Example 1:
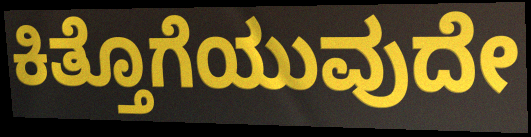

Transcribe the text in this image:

ಕಿತ್ತೊಗೆಯುವುದೇ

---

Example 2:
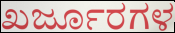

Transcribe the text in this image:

ಖರ್ಜೂರಗಳ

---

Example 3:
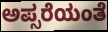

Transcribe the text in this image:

ಅಪ್ಸರೆಯಂತೆ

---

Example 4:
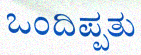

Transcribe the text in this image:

ಒಂದಿಪ್ಪತು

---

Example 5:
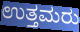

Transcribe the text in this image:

ಉತ್ತಮರು